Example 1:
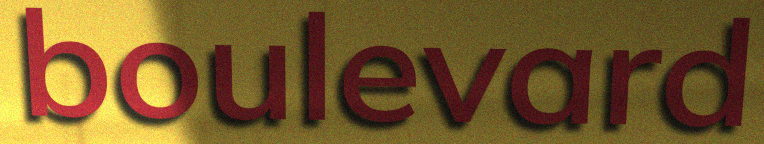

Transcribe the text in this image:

boulevard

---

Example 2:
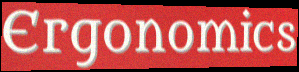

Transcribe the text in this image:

Ergonomics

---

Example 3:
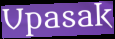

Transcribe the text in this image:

Upasak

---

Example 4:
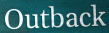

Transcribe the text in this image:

Outback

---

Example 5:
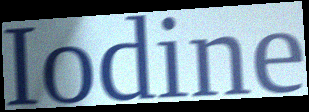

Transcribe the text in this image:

Iodine